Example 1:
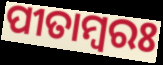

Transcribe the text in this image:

ପୀତାମ୍ୱରଃ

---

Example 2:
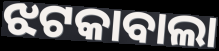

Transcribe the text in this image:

ଝଟକାବାଲା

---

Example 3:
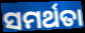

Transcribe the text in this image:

ସମର୍ଥତା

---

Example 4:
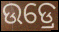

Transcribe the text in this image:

ଉଡ୍ରେ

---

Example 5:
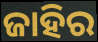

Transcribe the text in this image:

ଜାହିର